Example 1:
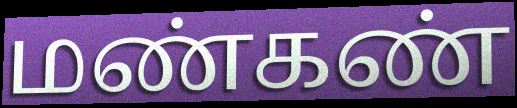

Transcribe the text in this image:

மண்கண்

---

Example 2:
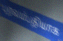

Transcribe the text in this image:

புறவம்பதியாக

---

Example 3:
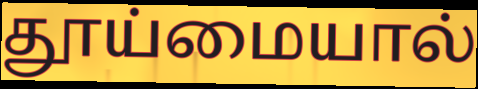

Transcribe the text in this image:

தூய்மையால்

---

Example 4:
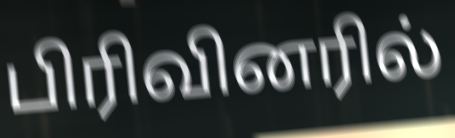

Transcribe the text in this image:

பிரிவினரில்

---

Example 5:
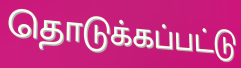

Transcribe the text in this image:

தொடுக்கப்பட்டு